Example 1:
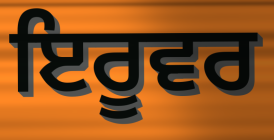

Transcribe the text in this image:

ਇਰੂਵਰ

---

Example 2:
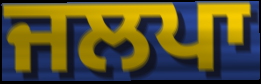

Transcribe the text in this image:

ਜਲਪਾ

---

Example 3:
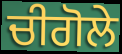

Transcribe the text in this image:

ਚੀਗੋਲੇ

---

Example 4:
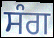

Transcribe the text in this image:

ਸੰਗ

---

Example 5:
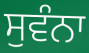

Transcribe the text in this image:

ਸੁਵੰਨਾ